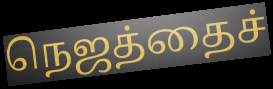
நெஜத்தைச்